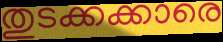
തുടക്കക്കാരെ